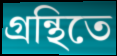
গ্রন্থিতে